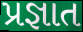
પ્રજ્ઞાત